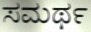
ಸಮರ್ಥ